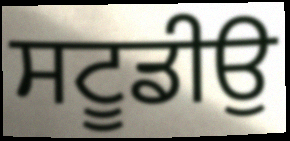
ਸਟੂਡੀਉ